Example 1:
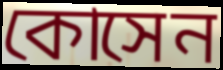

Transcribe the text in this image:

কোসেন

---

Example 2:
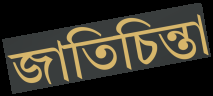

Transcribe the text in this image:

জাতিচিন্তা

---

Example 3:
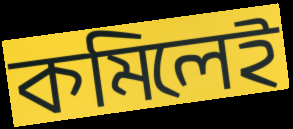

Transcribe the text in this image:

কমিলেই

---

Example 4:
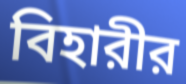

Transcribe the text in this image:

বিহারীর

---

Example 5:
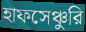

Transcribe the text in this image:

হাফসেঞ্চুরি